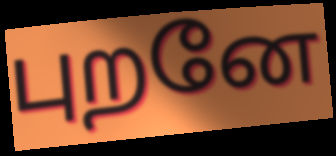
புறனே